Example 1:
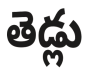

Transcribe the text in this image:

తెడ్లు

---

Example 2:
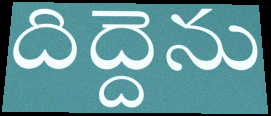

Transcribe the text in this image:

దిద్దెను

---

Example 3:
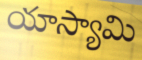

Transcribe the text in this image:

యాస్యామి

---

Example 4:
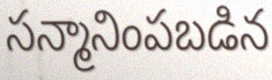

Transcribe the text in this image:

సన్మానింపబడిన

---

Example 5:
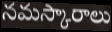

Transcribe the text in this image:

నమస్కారాలు